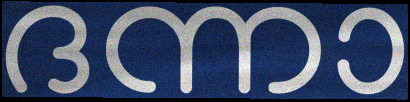
ദന്നാ